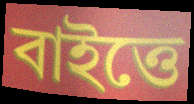
বাইত্তে